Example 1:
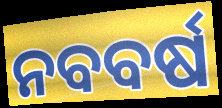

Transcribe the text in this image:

ନବବର୍ଷ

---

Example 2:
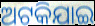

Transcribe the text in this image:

ଅଟକିଯାଇ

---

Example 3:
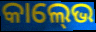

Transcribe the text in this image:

କାଲ୍‍ଭେ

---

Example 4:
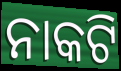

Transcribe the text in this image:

ନାକଟି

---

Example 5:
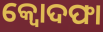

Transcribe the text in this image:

କ୍ବୋଦଫା